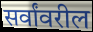
सर्वांवरील